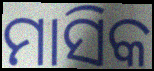
ମାସିକ